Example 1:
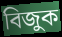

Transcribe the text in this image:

বিজুক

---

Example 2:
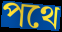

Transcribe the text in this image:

পথে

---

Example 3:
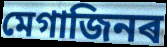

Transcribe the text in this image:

মেগাজিনৰ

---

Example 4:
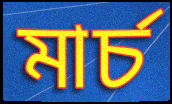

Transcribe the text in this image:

মাৰ্চ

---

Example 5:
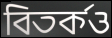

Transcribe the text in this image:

বিতৰ্কও